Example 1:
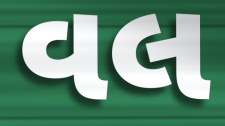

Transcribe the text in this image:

વલ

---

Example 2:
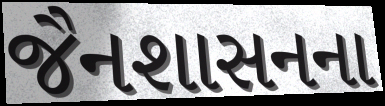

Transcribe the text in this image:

જૈનશાસનના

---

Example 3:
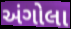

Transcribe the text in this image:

અંગોલા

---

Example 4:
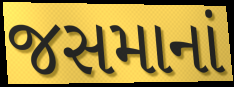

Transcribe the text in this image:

જસમાનાં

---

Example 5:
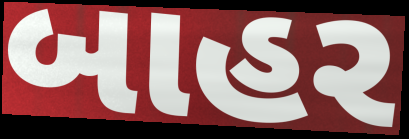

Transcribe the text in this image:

બાહર